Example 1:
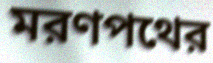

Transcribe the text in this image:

মরণপথের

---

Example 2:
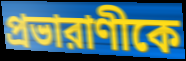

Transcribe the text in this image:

প্রভারাণীকে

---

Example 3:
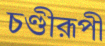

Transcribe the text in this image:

চণ্ডীরূপী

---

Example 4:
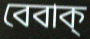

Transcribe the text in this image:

বেবাক্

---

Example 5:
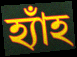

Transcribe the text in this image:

হ্যাঁহ